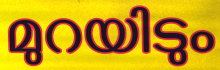
മുറയിടും